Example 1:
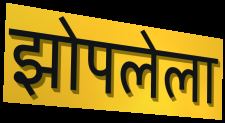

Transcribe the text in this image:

झोपलेला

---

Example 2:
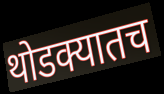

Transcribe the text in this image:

थोडक्यातच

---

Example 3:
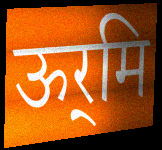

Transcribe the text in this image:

ऊर्मि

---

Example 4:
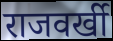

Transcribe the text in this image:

राजवर्खी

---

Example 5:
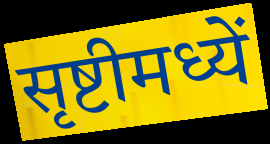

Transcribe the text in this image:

सृष्टीमध्यें